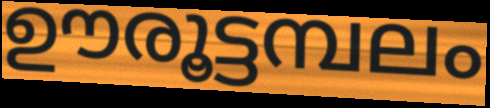
ഊരൂട്ടമ്പലം